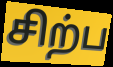
சிற்ப